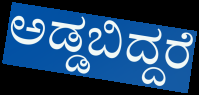
ಅಡ್ಡಬಿದ್ದರೆ